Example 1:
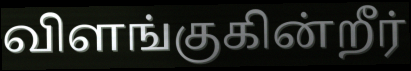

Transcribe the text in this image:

விளங்குகின்றீர்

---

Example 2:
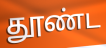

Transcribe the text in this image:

தூண்ட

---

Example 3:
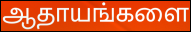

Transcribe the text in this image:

ஆதாயங்களை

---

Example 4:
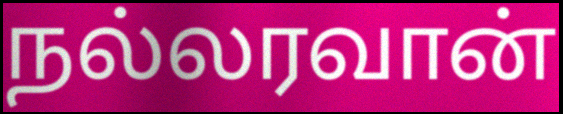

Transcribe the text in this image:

நல்லரவான்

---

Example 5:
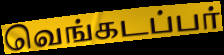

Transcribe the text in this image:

வெங்கடப்பர்